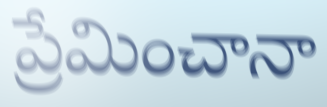
ప్రేమించానా